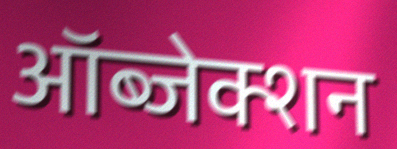
ऑब्जेक्शन